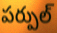
పర్పుల్